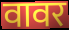
वावर